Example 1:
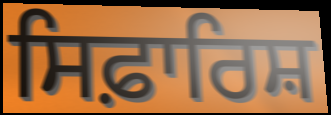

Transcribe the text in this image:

ਸਿਫ਼ਾਰਿਸ਼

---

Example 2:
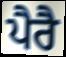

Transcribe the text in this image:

ਪੈਰੈ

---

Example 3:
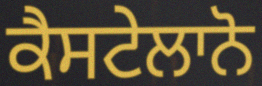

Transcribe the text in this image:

ਕੈਸਟੇਲਾਨੋ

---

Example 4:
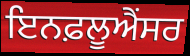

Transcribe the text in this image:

ਇਨਫ਼ਲੂਐਂਸਰ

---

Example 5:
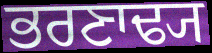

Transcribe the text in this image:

ਭਰਣਾਢ੍ਯ